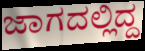
ಜಾಗದಲ್ಲಿದ್ದ